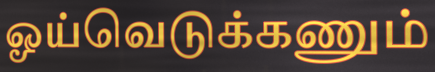
ஓய்வெடுக்கணும்